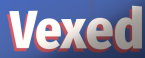
Vexed